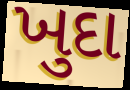
ખુદા